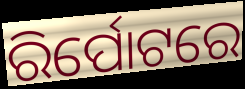
ରିର୍ପୋଟରେ